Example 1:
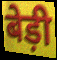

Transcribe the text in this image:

बेड़ी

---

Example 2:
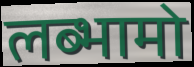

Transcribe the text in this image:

लब्भामो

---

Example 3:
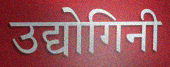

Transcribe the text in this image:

उद्योगिनी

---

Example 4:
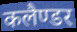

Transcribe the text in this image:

कलैण्डर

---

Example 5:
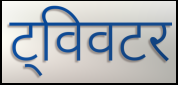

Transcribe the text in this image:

ट्विवटर